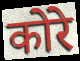
कोरे